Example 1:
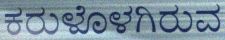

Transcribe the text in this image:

ಕರುಳೊಳಗಿರುವ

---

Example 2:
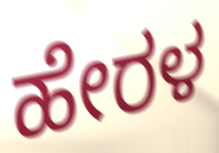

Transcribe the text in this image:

ಹೇರಳ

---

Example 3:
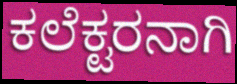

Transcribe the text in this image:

ಕಲೆಕ್ಟರನಾಗಿ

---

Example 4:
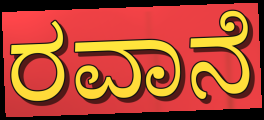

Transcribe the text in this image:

ರವಾನೆ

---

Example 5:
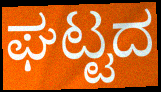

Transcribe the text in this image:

ಘಟ್ಟದ